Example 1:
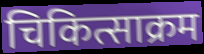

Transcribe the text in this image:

चिकित्साक्रम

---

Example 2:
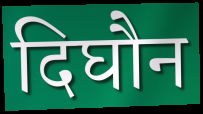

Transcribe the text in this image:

दिघौन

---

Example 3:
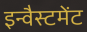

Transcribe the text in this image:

इन्वैस्टमेंट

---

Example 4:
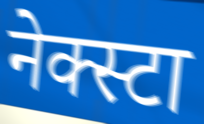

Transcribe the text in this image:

नेक्स्टा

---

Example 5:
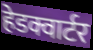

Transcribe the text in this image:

हेडक्वार्टर